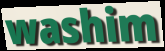
washim